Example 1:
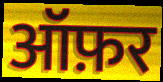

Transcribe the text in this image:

ऑफ़र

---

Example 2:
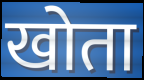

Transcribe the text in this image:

खोता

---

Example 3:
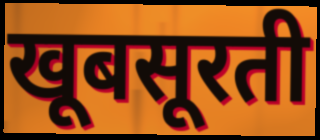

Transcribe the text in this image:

खूबसूरती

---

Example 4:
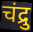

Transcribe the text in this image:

चंद्रु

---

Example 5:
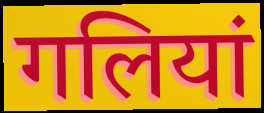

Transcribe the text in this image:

गलियां